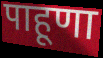
पाहूणा